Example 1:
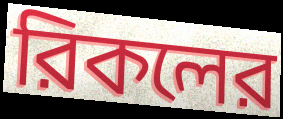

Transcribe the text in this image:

রিকলের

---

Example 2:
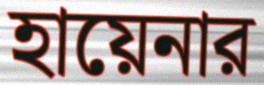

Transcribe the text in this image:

হায়েনার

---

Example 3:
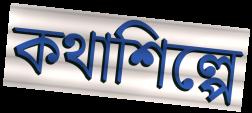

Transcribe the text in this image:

কথাশিল্পে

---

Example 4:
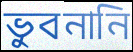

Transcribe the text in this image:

ভুবনানি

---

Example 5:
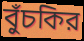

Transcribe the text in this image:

বুঁচকির